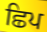
ਛਿਪ